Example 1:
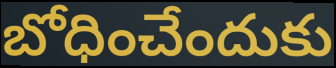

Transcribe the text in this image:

బోధించేందుకు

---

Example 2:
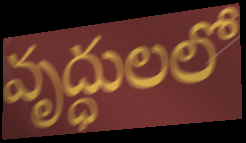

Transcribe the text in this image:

వృద్ధులలో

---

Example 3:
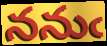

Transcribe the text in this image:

ననుఁ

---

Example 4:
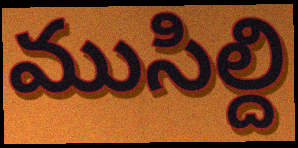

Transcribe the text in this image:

ముసిల్ది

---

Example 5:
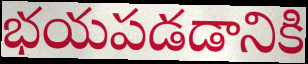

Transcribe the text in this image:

భయపడడానికి